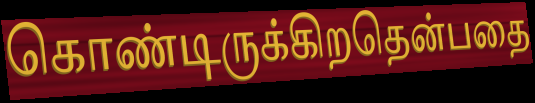
கொண்டிருக்கிறதென்பதை